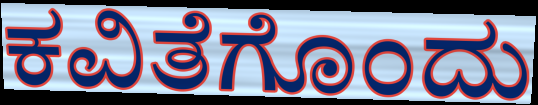
ಕವಿತೆಗೊಂದು